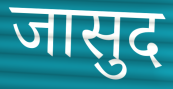
जासुद